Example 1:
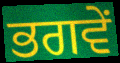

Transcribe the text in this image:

ਭਗਵੇਂ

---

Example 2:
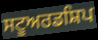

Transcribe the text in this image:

ਸਟੂਅਰਡਸ਼ਿਪ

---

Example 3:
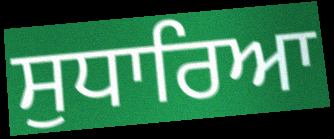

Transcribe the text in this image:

ਸੁਧਾਰਿਆ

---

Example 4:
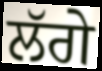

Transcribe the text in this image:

ਲੱਗੇ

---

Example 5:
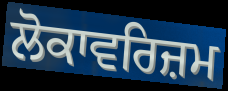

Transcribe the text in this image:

ਲੋਕਾਵਰਿਜ਼ਮ